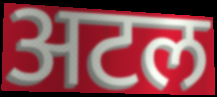
अटल